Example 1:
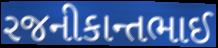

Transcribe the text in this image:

રજનીકાન્તભાઈ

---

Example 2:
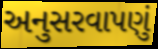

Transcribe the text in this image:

અનુસરવાપણું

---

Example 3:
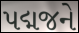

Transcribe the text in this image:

પદ્મજને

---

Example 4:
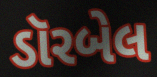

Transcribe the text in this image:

ડૉરબેલ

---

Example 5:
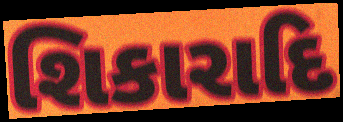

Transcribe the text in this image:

શિકારાદિ